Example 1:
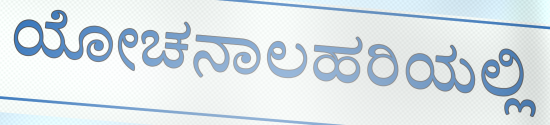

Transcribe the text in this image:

ಯೋಚನಾಲಹರಿಯಲ್ಲಿ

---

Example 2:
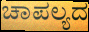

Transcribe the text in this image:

ಚಾಪಲ್ಯದ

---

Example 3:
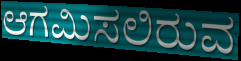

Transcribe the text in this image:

ಆಗಮಿಸಲಿರುವ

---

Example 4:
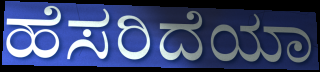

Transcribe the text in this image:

ಹೆಸರಿದೆಯಾ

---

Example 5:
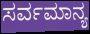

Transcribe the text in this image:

ಸರ್ವಮಾನ್ಯ